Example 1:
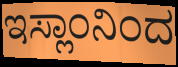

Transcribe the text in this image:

ಇಸ್ಲಾಂನಿಂದ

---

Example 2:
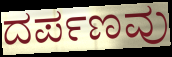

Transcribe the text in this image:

ದರ್ಪಣವು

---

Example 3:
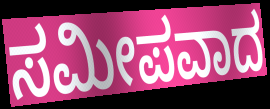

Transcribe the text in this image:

ಸಮೀಪವಾದ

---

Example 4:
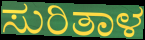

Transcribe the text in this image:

ಸುರಿತಾಳ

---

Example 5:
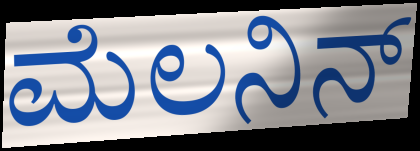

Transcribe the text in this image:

ಮೆಲನಿನ್